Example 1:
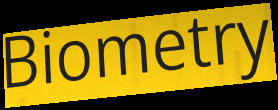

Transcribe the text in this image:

Biometry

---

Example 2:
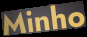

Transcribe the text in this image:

Minho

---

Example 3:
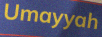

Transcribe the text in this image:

Umayyah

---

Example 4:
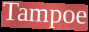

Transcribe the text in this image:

Tampoe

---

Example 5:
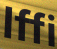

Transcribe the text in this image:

Iffi